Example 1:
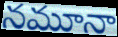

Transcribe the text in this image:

నమూనా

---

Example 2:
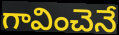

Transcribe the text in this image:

గావించెనే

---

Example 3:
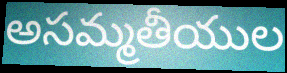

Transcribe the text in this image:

అసమ్మతీయుల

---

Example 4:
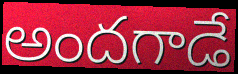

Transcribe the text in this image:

అందగాడే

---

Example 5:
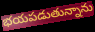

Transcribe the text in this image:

భయపడుతున్నాను